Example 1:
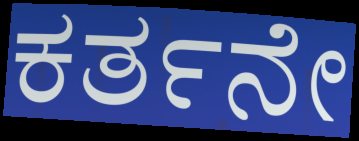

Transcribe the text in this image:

ಕರ್ತನೇ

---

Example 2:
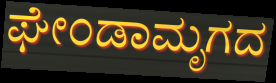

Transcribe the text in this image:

ಘೇಂಡಾಮೃಗದ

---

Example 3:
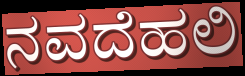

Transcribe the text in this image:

ನವದೆಹಲಿ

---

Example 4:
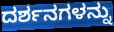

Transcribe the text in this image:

ದರ್ಶನಗಳನ್ನು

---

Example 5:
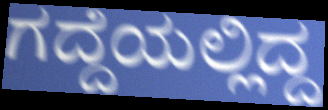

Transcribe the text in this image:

ಗದ್ದೆಯಲ್ಲಿದ್ದ